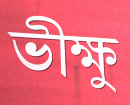
ভীক্ষু